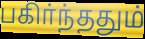
பகிர்ந்ததும்